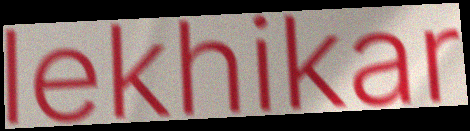
lekhikar